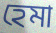
হেমা